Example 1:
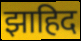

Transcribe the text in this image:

झाहिद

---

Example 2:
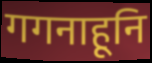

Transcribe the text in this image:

गगनाहूनि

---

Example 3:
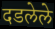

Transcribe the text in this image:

दडलेले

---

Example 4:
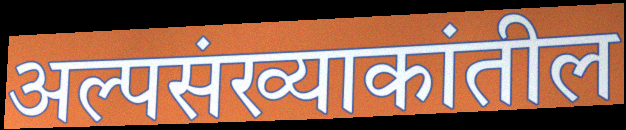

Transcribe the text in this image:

अल्पसंख्याकांतील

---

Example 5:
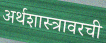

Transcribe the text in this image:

अर्थशास्त्रावरची